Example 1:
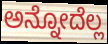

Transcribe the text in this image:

ಅನ್ನೋದೆಲ್ಲ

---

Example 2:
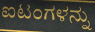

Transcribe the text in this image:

ಐಟಂಗಳನ್ನು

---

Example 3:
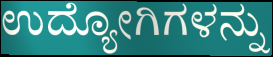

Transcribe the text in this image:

ಉದ್ಯೋಗಿಗಳನ್ನು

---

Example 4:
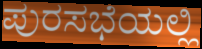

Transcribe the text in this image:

ಪುರಸಭೆಯಲ್ಲಿ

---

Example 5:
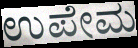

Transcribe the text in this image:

ಉಪೇಮ